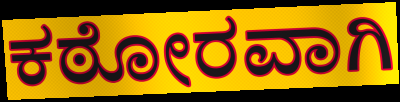
ಕಠೋರವಾಗಿ